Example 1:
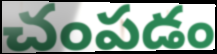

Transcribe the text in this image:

చంపడం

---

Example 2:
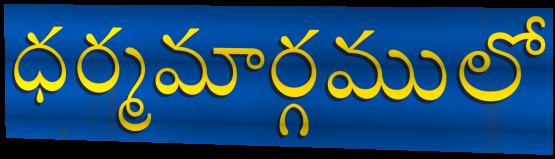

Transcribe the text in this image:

ధర్మమార్గములో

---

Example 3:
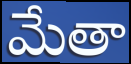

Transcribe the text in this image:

మేతా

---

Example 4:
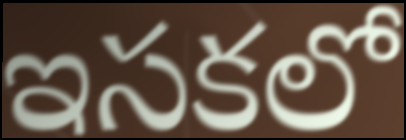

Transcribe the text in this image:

ఇసకలో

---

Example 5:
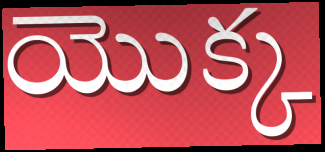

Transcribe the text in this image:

యొక్క